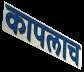
कापलाच